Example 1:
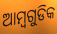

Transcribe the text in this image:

ଆମ୍ବଗୁଡିକ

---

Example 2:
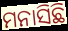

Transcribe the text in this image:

ମନାସିଛି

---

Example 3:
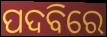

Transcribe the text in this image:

ପଦବିରେ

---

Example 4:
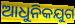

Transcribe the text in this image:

ଆଧୁନିକଯୁଗ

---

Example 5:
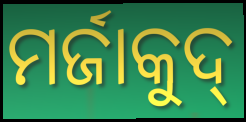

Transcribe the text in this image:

ମର୍ଜାକୁଦ୍